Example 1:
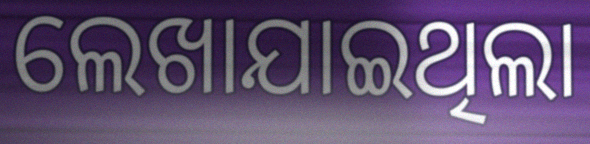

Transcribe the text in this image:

ଲେଖାଯାଇଥିଲା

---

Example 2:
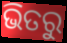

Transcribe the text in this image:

ଭିତରୁ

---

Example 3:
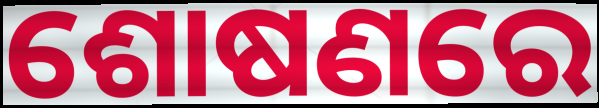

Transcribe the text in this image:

ଶୋଷଣରେ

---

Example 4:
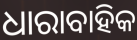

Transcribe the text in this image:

ଧାରାବାହିକ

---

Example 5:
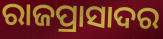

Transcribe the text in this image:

ରାଜପ୍ରାସାଦର